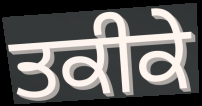
ਤਕੀਕੇ